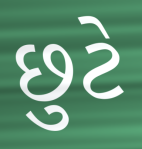
છુટે